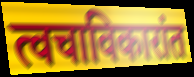
त्वचाविकारांत